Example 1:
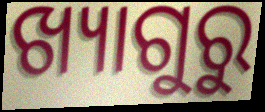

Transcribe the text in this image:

ଖ୍ୟାଗୁରୁ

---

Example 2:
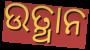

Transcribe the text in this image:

ଉତ୍ଥାନ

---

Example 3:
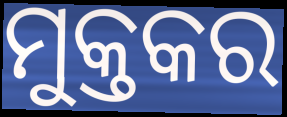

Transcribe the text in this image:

ମୁକ୍ତକର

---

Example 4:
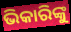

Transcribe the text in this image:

ଭିକାରିଙ୍କୁ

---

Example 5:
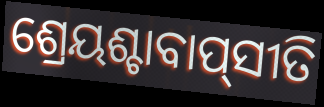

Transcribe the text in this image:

ଶ୍ରେୟଶ୍ଚାବାପ୍‌ସୀତି